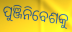
ପୁଞ୍ଜିନିବେଶକୁ